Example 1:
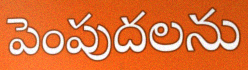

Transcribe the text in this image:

పెంపుదలను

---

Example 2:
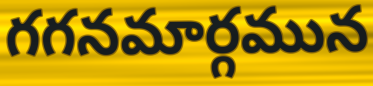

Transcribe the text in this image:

గగనమార్గమున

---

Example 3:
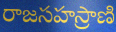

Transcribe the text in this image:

రాజసహస్రాణి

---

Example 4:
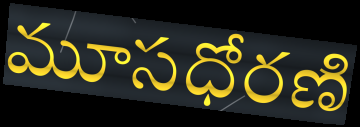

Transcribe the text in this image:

మూసధోరణి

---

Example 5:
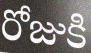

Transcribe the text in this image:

రోజుకి